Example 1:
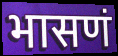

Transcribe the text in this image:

भासणं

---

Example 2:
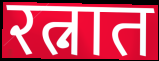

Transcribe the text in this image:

रत्नात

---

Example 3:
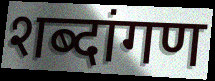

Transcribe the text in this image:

शब्दांगण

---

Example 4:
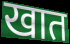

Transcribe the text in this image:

खात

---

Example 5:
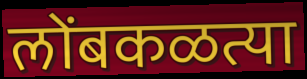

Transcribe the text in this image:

लोंबकळत्या